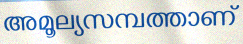
അമൂല്യസമ്പത്താണ്